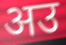
अउ